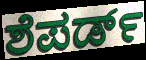
ಶೆಪರ್ಡ್